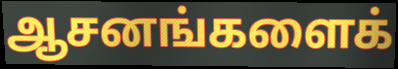
ஆசனங்களைக்